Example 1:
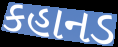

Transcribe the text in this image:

કહાનડ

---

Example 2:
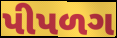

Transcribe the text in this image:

પીપળગ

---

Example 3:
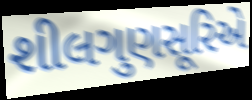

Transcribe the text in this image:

શીલગુણસૂરિએ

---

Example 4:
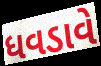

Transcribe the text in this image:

ધવડાવે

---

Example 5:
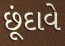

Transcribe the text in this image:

છૂંદાવે